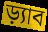
ড়্যাব